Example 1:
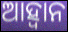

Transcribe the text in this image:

ଆହ୍ୱାନ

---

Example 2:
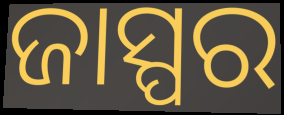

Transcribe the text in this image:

ଜାସ୍ପର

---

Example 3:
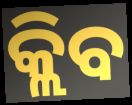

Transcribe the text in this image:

କ୍ଲିବ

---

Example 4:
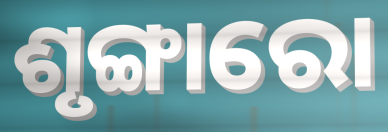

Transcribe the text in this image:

ଶୃଙ୍ଗାରୋ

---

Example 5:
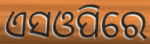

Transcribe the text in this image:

ଏସଓପିରେ